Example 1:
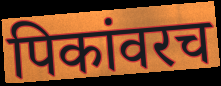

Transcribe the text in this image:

पिकांवरच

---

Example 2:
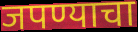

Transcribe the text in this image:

जपण्याचा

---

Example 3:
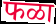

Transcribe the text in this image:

फळा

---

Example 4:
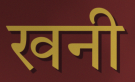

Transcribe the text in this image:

खनी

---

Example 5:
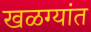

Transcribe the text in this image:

खळग्यांत